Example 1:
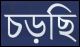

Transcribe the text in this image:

চড়ছি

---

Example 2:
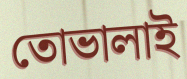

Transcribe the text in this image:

তোভালাই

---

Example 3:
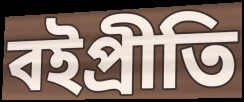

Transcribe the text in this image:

বইপ্রীতি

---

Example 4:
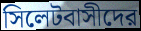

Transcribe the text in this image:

সিলেটবাসীদের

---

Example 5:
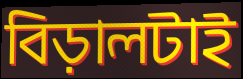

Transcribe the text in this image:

বিড়ালটাই